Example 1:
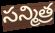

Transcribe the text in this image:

సన్మిత్ర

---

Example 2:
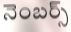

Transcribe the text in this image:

నెంబర్స్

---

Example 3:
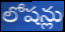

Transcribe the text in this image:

లోషన్లు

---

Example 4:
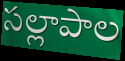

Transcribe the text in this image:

సల్లాపాల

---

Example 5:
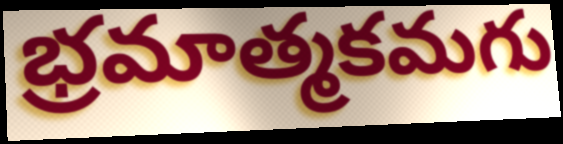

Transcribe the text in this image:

భ్రమాత్మకమగు